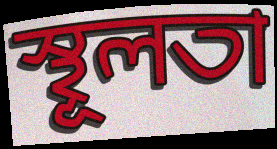
স্থূলতা